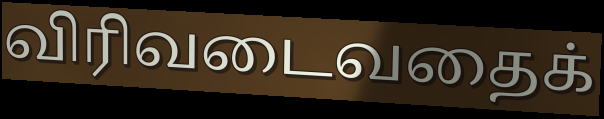
விரிவடைவதைக்